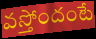
వస్తోందంటే